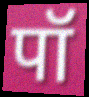
पॉ